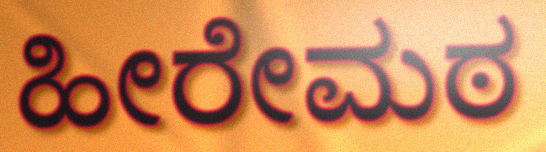
ಹೀರೇಮಠ